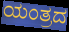
ಯಂತ್ರದ